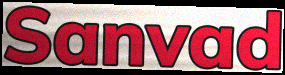
Sanvad